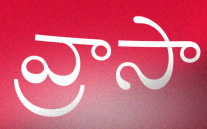
వ్రాసా